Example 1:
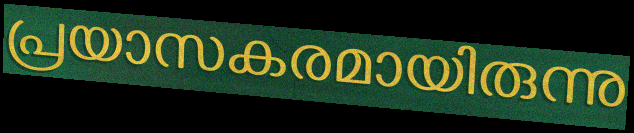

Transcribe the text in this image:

പ്രയാസകരമായിരുന്നു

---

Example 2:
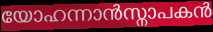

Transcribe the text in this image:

യോഹന്നാൻസ്നാപകൻ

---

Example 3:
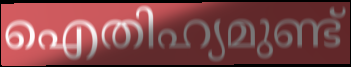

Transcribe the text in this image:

ഐതിഹ്യമുണ്ട്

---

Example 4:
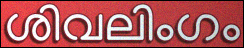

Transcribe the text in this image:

ശിവലിംഗം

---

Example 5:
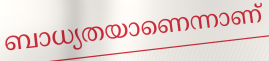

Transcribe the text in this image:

ബാധ്യതയാണെന്നാണ്